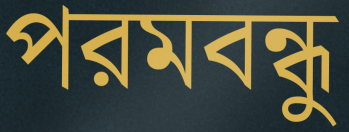
পরমবন্ধু